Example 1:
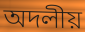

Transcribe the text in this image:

অদলীয়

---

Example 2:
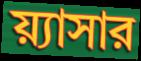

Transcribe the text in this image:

য়্যাসার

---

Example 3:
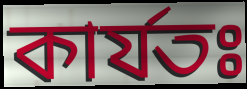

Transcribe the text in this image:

কার্যতঃ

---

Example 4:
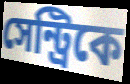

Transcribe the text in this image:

সেন্ট্রিকে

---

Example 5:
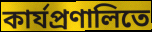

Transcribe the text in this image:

কার্যপ্রণালিতে